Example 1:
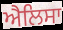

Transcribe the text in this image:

ਐਲਿਸਾ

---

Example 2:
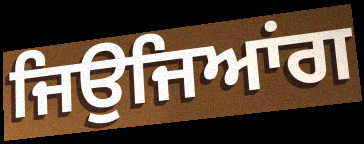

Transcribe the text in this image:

ਜਿਉਜਿਆਂਗ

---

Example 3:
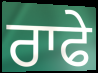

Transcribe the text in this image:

ਰਾਫੇ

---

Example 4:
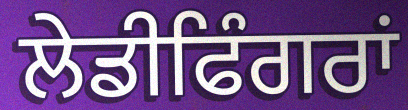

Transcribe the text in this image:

ਲੇਡੀਫਿੰਗਰਾਂ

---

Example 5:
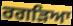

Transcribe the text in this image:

ਰਗੜਿਆ